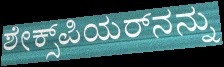
ಶೇಕ್ಸ್‌ಪಿಯರ್‌ನನ್ನು